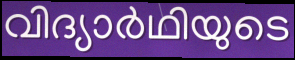
വിദ്യാർഥിയുടെ